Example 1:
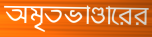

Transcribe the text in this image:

অমৃতভাণ্ডারের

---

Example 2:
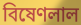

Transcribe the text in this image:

বিষেণলাল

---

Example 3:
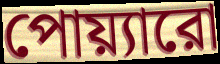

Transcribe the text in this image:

পোয়্যারো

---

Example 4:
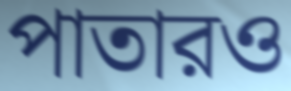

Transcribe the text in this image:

পাতারও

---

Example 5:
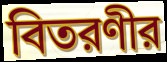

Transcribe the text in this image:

বিতরণীর